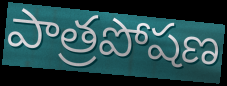
పాత్రపోషణ